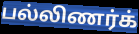
பல்லிணர்க்